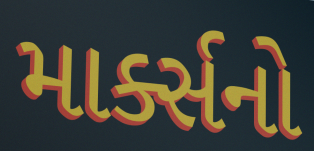
માર્ક્સનો